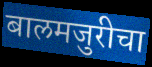
बालमजुरीचा